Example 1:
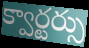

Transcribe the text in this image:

క్వార్టర్సు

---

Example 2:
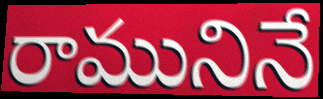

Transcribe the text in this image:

రామునినే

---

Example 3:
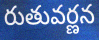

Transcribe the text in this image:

రుతువర్ణన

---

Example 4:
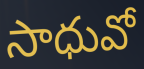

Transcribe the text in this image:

సాధువో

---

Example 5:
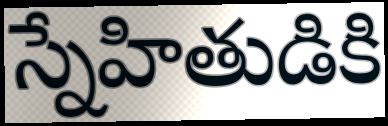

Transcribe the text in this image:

స్నేహితుడికి